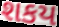
શકય